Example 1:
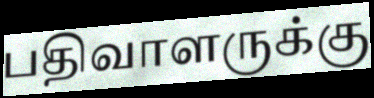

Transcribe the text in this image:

பதிவாளருக்கு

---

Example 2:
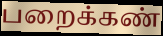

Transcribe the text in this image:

பறைக்கண்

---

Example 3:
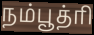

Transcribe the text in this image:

நம்பூத்ரி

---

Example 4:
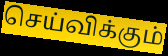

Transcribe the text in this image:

செய்விக்கும்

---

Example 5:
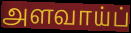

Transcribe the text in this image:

அளவாய்ப்